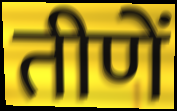
तीणें